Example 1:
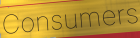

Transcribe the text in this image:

Consumers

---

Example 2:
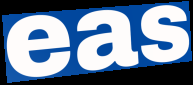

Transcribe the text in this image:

eas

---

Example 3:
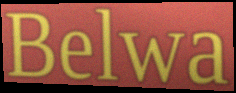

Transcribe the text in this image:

Belwa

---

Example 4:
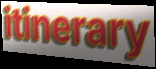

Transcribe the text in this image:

itinerary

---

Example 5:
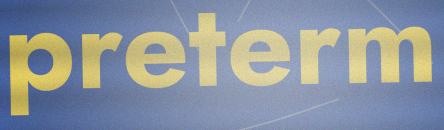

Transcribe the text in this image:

preterm